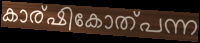
കാര്ഷികോത്പന്ന